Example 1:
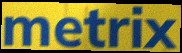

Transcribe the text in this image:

metrix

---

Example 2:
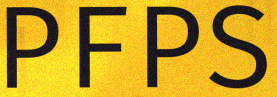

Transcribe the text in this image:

PFPS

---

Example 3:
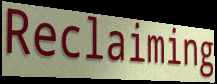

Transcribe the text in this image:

Reclaiming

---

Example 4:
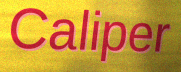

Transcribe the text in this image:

Caliper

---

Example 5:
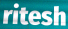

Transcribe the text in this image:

ritesh